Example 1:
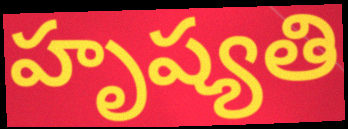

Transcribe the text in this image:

హృష్యతి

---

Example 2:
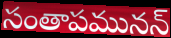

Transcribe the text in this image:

సంతాపమునన్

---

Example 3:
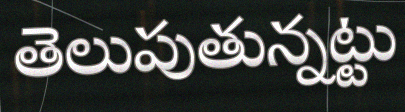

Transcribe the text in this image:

తెలుపుతున్నట్టు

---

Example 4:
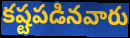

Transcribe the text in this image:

కష్టపడినవారు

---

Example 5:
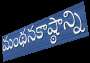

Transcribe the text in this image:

మంథనకాష్ఠాన్ని